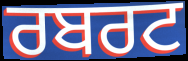
ਰਬਰਟ